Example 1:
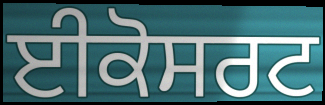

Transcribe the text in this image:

ਈਕੋਸਰਟ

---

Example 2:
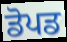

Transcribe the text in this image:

ਡੋਪਡ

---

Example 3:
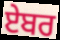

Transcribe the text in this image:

ਏਬਰ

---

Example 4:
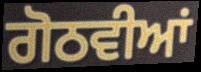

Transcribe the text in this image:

ਗੋਠਵੀਆਂ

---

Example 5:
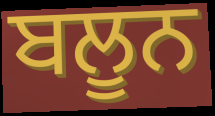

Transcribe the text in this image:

ਬਲੂਨ